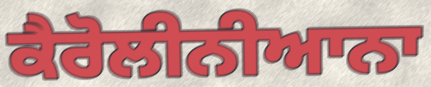
ਕੈਰੋਲੀਨੀਆਨਾ